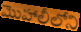
మొహాలీలోని